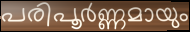
പരിപൂർണ്ണമായും